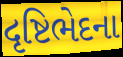
દૃષ્ટિભેદના